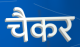
चैकर